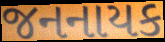
જનનાયક